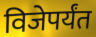
विजेपर्यंत